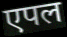
एपल